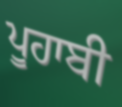
ਪੂਹਾਬੀ